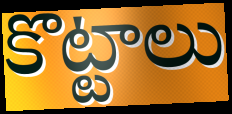
కొట్టాలు